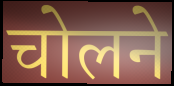
चोलने